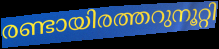
രണ്ടായിരത്തറുനൂറ്റി